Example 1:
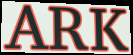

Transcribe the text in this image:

ARK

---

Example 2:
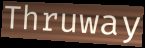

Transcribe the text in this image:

Thruway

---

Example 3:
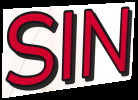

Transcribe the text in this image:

SIN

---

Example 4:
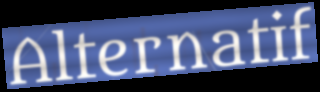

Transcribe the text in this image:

Alternatif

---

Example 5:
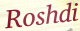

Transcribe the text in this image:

Roshdi